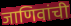
जाणिवांची